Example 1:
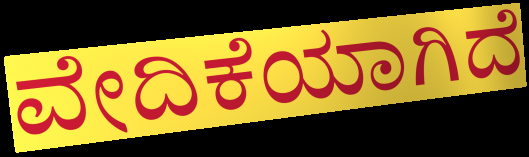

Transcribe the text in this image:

ವೇದಿಕೆಯಾಗಿದೆ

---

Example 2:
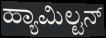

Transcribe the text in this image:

ಹ್ಯಾಮಿಲ್ಟನ್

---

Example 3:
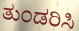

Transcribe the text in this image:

ತುಂಡರಿಸಿ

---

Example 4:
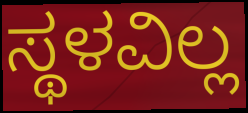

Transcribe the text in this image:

ಸ್ಥಳವಿಲ್ಲ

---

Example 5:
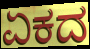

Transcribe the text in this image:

ಏಕದ